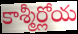
కాశ్మీర్లోయ